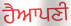
ਹੈਆਪਣੀ